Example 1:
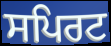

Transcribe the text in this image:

ਸਪਿਰਟ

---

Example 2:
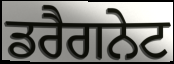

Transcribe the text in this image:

ਡਰੈਗਨੇਟ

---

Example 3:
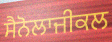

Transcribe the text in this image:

ਸੈਨੋਲਾਜੀਕਲ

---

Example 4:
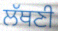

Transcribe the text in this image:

ਲੱਥਣੀ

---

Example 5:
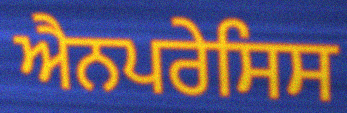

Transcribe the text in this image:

ਐਨਪਰੇਸਿਸ